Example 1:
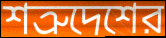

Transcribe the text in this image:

শত্রুদেশের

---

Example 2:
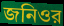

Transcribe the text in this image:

জনিওর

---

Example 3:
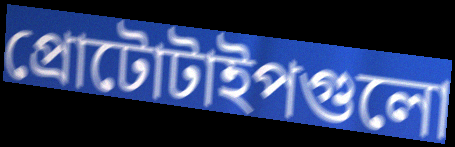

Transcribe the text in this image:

প্রোটোটাইপগুলো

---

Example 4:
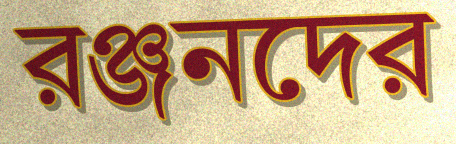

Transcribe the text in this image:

রঞ্জনদের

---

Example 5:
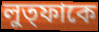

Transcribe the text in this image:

লুত্ফাকে